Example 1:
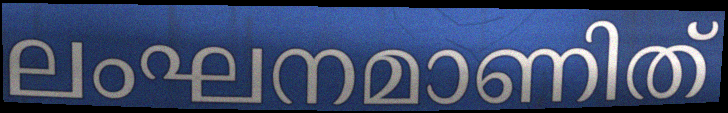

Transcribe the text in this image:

ലംഘനമാണിത്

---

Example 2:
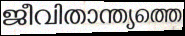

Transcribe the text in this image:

ജീവിതാന്ത്യത്തെ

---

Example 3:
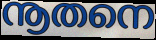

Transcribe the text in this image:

നൂതനെ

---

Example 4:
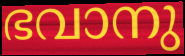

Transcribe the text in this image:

ഭവാനു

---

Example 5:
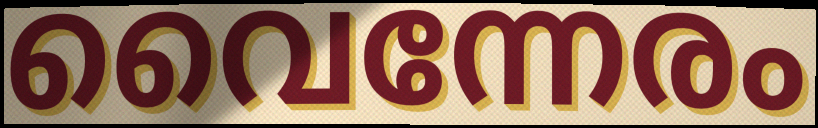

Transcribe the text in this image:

വൈന്നേരം